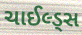
ચાઈલ્ડ્સ